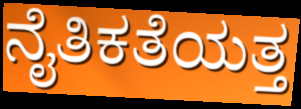
ನೈತಿಕತೆಯತ್ತ